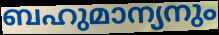
ബഹുമാന്യനും